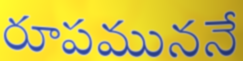
రూపముననే